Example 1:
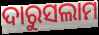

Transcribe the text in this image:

ଦାରୁସଲାମ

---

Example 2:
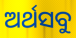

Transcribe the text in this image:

ଅର୍ଥସବୁ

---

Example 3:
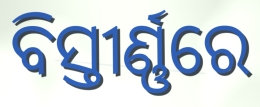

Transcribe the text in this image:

ବିସ୍ତୀର୍ଣ୍ଣରେ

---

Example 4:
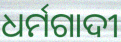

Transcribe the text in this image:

ଧର୍ମଗାଦୀ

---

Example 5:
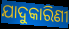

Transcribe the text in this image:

ଯାଦୁକାରିଣୀ